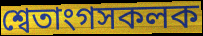
শ্বেতাংগসকলক